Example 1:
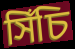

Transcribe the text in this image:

সিঁচি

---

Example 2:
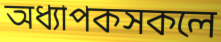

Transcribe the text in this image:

অধ্যাপকসকলে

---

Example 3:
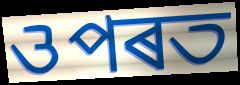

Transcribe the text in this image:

ওপৰত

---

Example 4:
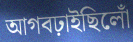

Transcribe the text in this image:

আগবঢ়াইছিলোঁ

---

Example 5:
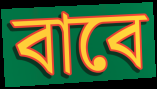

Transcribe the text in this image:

বাবে